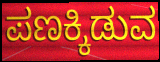
ಪಣಕ್ಕಿಡುವ